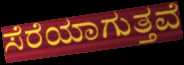
ಸೆರೆಯಾಗುತ್ತವೆ